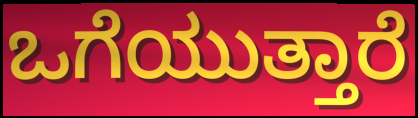
ಒಗೆಯುತ್ತಾರೆ